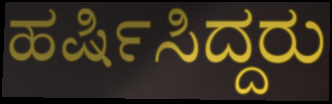
ಹರ್ಷಿಸಿದ್ದರು